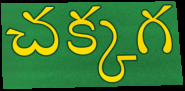
చక్కగ